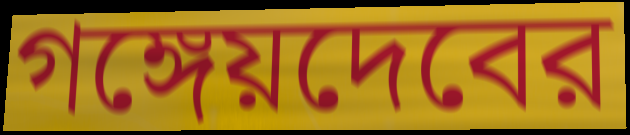
গঙ্গেয়দেবের